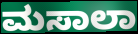
ಮಸಾಲಾ